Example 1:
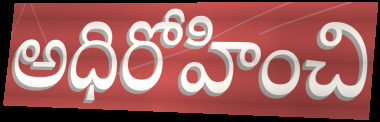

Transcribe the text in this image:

అధిరోహించి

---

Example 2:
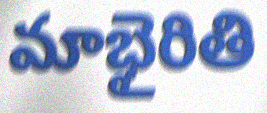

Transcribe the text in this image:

మాభైరితి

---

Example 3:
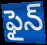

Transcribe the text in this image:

ఫైన్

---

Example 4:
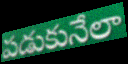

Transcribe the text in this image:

పడుకునేలా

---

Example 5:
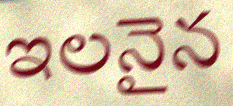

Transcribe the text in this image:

ఇలనైన